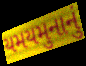
યમયમુનાનું